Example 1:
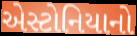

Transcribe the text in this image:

એસ્ટોનિયાનો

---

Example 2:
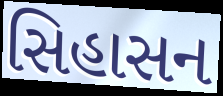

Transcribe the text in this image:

સિહાસન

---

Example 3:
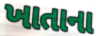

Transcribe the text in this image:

ખાતાના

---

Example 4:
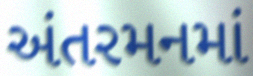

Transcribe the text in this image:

અંતરમનમાં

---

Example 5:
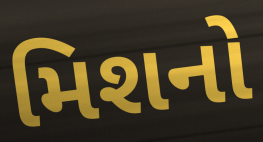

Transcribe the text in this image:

મિશનો